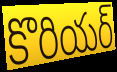
కొరియర్